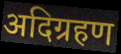
अदिग्रहण